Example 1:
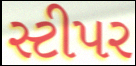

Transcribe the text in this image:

સ્ટીપર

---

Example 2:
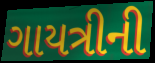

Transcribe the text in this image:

ગાયત્રીની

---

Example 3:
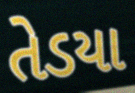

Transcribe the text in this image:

તેડયા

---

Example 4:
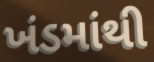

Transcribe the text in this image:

ખંડમાંથી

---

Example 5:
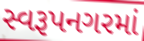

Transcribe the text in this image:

સ્વરૂપનગરમાં